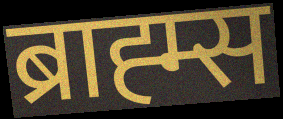
ब्राह्म्स